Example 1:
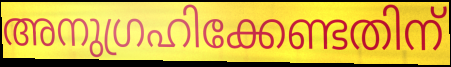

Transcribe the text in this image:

അനുഗ്രഹിക്കേണ്ടതിന്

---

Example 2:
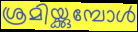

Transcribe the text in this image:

ശ്രമിയ്ക്കുമ്പോൾ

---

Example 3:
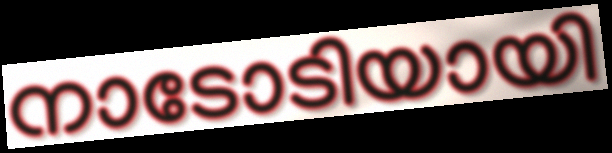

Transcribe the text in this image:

നാടോടിയായി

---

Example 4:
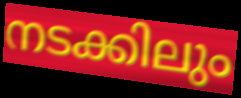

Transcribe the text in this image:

നടക്കിലും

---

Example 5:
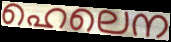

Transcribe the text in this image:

ഹെലെന